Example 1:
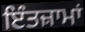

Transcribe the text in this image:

ਇੰਤਜ਼ਾਮਾਂ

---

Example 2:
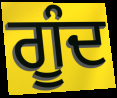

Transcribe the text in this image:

ਗੂੰਦ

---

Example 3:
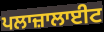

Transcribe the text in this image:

ਪਲਾਜ਼ਾਲਾਈਟ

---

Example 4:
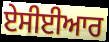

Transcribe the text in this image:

ਏਸੀਈਆਰ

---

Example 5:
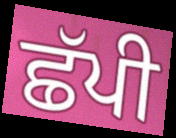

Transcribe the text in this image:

ਛੱਪੀ